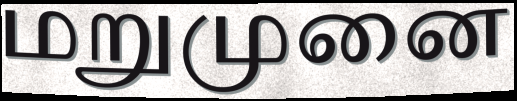
மறுமுனை